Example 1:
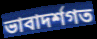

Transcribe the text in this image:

ভাবাদৰ্শগত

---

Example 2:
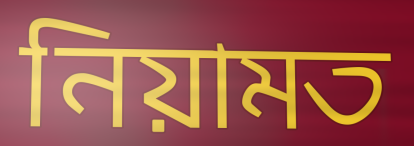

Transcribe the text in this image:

নিয়ামত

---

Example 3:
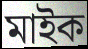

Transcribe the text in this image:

মাইক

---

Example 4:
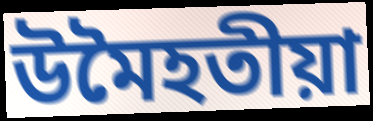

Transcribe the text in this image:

উমৈহতীয়া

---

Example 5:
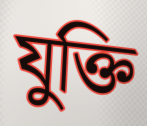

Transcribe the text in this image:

যুক্তি